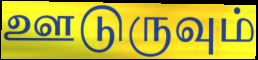
ஊடுருவும்